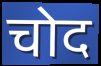
चोद